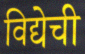
विद्येची